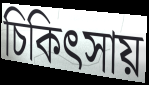
চিকিৎসায়